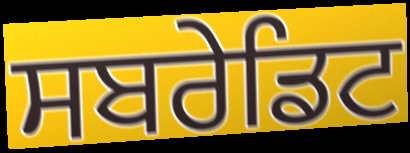
ਸਬਰੇਡਿਟ